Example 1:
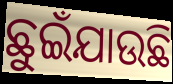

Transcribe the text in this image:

ଛୁଇଁଯାଉଛି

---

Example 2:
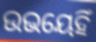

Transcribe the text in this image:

ଉଭୟେହିଁ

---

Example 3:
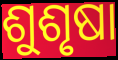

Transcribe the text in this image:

ଶୁଶୃଷା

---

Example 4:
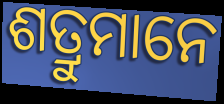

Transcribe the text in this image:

ଶତ୍ରୁମାନେ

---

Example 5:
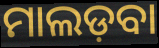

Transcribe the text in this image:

ମାଲଡ଼ବା